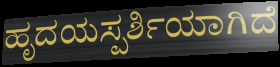
ಹೃದಯಸ್ಪರ್ಶಿಯಾಗಿದೆ